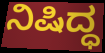
ನಿಷಿದ್ಧ